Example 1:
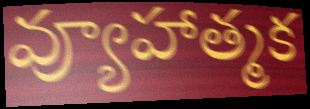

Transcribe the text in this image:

వ్యూహాత్మక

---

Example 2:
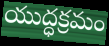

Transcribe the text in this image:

యుద్ధక్రమం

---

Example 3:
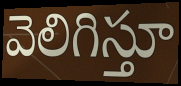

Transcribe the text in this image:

వెలిగిస్తూ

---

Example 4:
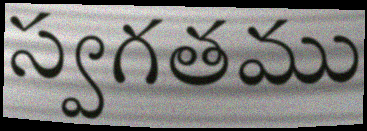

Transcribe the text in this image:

స్వగతము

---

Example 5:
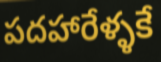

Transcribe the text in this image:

పదహారేళ్ళకే